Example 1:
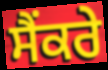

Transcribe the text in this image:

ਸੈਂਕਰੇ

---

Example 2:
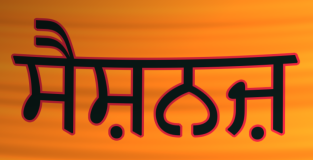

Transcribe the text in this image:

ਸੈਸ਼ਨਜ਼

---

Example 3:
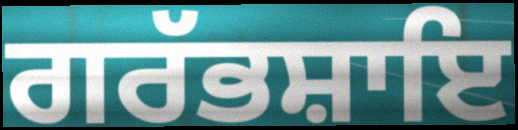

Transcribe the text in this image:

ਗਰੱਭਸ਼ਾਇ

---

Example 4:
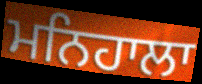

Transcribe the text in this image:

ਮਨਿਹਾਲਾ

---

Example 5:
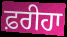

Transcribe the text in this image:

ਫ਼ਰੀਹਾ